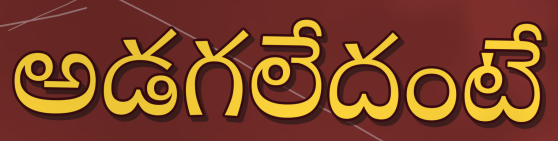
అడగలేదంటే